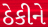
ઠેકીને